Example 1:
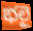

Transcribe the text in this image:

భలై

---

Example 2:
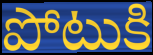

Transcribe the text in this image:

పోటుకి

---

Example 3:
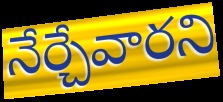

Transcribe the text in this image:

నేర్చేవారని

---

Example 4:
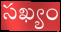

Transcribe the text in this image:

సఖ్యం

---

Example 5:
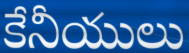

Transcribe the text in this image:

కేనీయులు